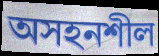
অসহনশীল